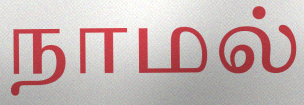
நாமல்